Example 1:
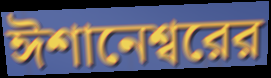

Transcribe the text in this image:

ঈশানেশ্বরের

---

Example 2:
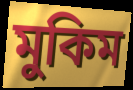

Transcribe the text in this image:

মুকিম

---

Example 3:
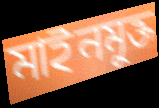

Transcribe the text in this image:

মাইনমুক্ত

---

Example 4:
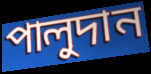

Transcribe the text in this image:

পালুদান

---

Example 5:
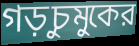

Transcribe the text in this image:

গড়চুমুকের